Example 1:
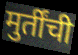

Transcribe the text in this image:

मुर्तींची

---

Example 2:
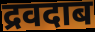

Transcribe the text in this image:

द्रवदाब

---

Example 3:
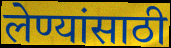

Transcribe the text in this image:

लेण्यांसाठी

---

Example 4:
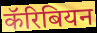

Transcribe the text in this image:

कॅरिबियन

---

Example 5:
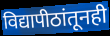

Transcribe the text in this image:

विद्यापीठांतूनही